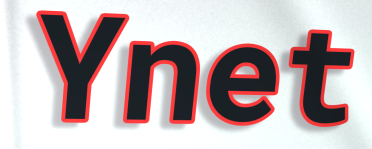
Ynet